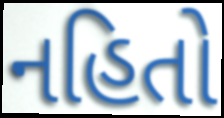
નહિતો